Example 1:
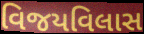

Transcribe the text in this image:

વિજયવિલાસ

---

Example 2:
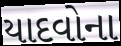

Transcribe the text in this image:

યાદવોના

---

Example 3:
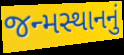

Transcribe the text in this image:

જન્મસ્થાનનું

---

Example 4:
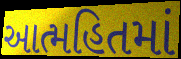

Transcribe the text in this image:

આત્મહિતમાં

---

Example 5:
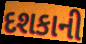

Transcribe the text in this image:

દશકાની